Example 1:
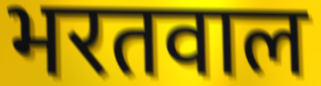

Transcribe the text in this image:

भरतवाल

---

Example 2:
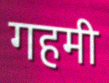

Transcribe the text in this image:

गहमी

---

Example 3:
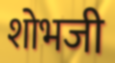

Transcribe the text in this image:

शोभजी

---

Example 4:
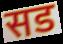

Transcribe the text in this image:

सड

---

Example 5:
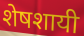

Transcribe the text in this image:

शेषशायी